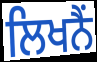
ਲਿਖਨੈਂ